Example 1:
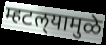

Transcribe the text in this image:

म्हटल्यामुळे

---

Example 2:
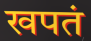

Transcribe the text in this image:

खपतं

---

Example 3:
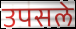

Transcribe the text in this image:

उपसले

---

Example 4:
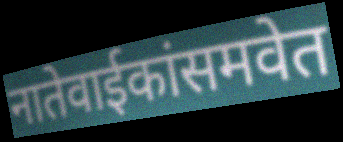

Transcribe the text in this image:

नातेवाईकांसमवेत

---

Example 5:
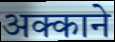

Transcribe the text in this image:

अक्काने